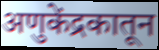
अणुकेंद्रकातून